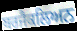
ਬਰਜੈਕਲਿਅਨ